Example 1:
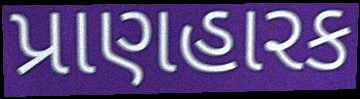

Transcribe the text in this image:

પ્રાણહારક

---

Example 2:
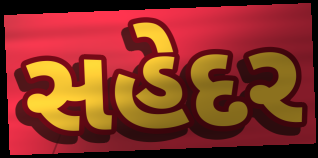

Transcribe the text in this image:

સહેદર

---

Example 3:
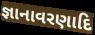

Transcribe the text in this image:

જ્ઞાનાવરણાદિ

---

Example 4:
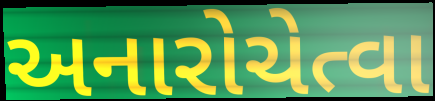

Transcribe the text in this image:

અનારોચેત્વા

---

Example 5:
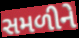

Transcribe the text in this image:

સમળીને